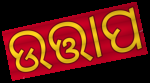
ଉତ୍ତାପ